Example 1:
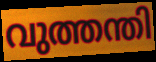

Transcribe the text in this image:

വുത്തന്തി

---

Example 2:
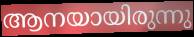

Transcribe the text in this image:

ആനയായിരുന്നു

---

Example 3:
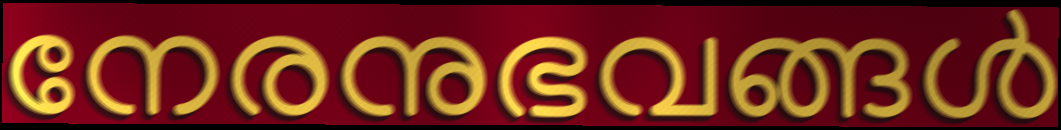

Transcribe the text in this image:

നേരനുഭവങ്ങൾ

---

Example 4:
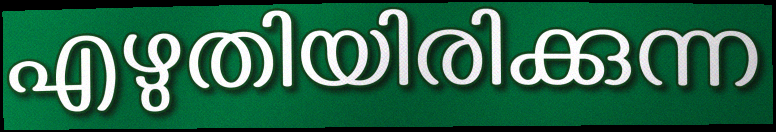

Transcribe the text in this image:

എഴുതിയിരിക്കുന്ന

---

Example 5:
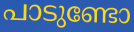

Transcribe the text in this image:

പാടുണ്ടോ